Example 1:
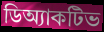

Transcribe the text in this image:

ডিঅ্যাকটিভ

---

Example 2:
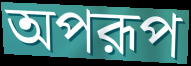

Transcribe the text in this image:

অপরূপ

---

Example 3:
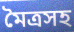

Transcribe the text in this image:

মৈত্রসহ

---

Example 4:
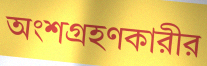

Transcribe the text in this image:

অংশগ্রহণকারীর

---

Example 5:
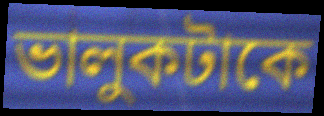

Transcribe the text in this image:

ভালুকটাকে